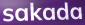
sakada